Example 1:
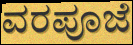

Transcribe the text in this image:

ವರಪೂಜೆ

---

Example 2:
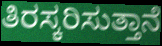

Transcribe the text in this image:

ತಿರಸ್ಕರಿಸುತ್ತಾನೆ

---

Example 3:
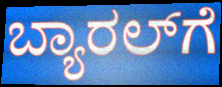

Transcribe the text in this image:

ಬ್ಯಾರಲ್‌ಗೆ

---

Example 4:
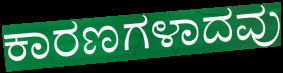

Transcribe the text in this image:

ಕಾರಣಗಳಾದವು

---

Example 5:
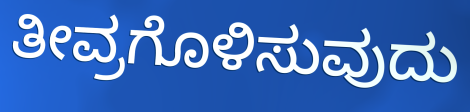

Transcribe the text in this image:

ತೀವ್ರಗೊಳಿಸುವುದು